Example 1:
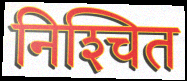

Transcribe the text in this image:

निश्‍चित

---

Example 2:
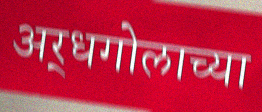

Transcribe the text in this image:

अर्धगोलाच्या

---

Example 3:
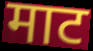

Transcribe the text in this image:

माट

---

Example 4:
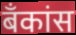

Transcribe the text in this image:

बँकांस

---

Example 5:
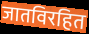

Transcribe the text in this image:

जातविरहित